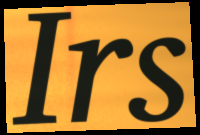
Irs